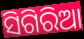
ସିଗିରିଆ